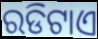
ରଡିଟାଏ